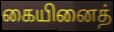
கையினைத்